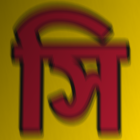
সি